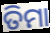
ତିମା